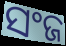
ସଂଜ